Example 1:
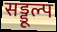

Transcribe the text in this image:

सड्डूल्प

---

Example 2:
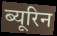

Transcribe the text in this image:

ब्यूरिन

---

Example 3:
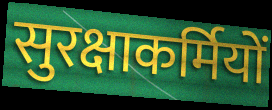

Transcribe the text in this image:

सुरक्षाकर्मियों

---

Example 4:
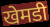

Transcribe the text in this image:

खेमडी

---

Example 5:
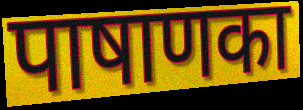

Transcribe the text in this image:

पाषाणका